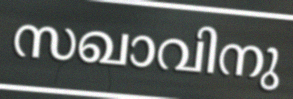
സഖാവിനു